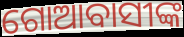
ଗୋଆବାସୀଙ୍କ